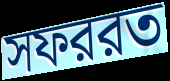
সফররত